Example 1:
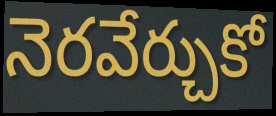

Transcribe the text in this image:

నెరవేర్చుకో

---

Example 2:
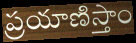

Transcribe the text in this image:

ప్రయాణిస్తాం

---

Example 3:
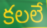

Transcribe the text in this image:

కలలే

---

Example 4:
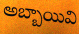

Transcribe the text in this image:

అబ్బాయివి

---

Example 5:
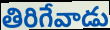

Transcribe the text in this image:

తిరిగేవాడు